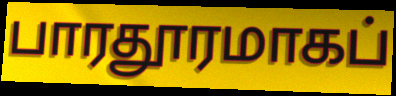
பாரதூரமாகப்